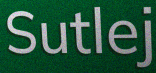
Sutlej